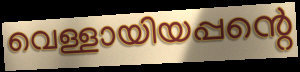
വെള്ളായിയപ്പന്റെ